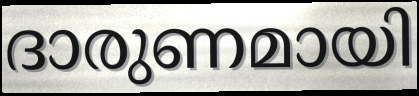
ദാരുണമായി